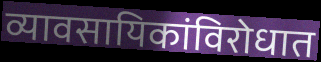
व्यावसायिकांविरोधात